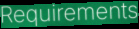
Requirements